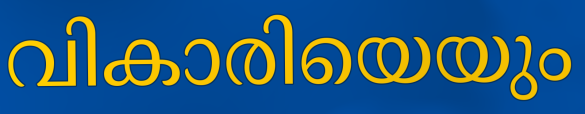
വികാരിയെയും